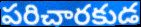
పరిచారకుడ